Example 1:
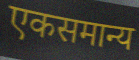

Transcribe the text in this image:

एकसमान्य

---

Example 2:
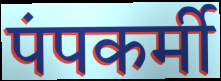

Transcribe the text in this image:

पंपकर्मी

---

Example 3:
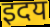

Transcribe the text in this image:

इदय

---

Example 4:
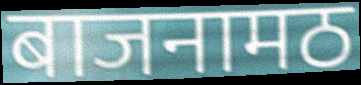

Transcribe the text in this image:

बाजनामठ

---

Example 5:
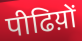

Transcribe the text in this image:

पीढिय़ों